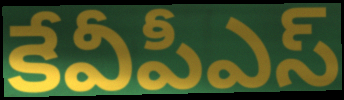
కేవీపీఎస్